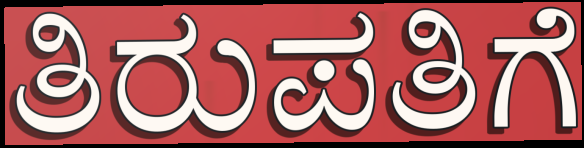
ತಿರುಪತಿಗೆ